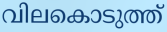
വിലകൊടുത്ത്